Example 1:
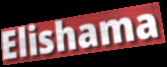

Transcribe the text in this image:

Elishama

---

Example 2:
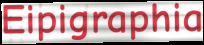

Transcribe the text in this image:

Eipigraphia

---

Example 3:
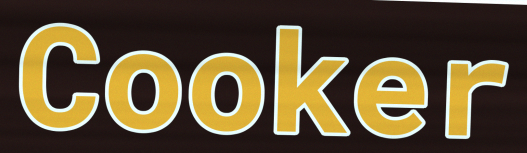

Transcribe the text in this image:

Cooker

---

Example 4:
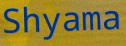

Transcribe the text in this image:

Shyama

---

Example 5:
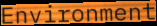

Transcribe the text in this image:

Environment